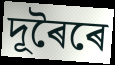
দূৰৈৰে